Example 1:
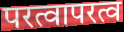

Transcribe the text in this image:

परत्वापरत्व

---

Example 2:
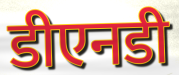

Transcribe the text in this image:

डीएनडी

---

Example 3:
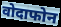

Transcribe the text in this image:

वोदाफोन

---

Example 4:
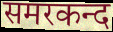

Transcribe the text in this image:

समरकन्द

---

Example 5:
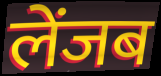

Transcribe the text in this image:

लेंजब